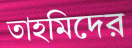
তাহমিদের